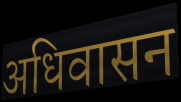
अधिवासन